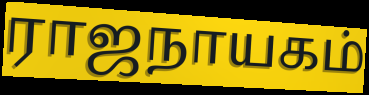
ராஜநாயகம்